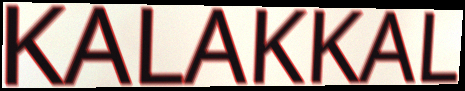
KALAKKAL